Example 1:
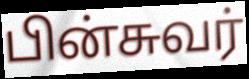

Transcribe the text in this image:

பின்சுவர்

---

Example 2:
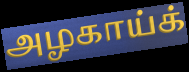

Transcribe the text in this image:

அழகாய்க்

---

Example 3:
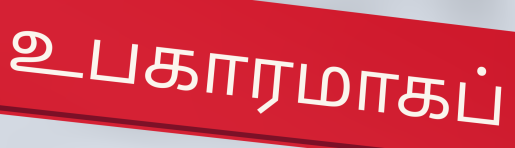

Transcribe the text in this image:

உபகாரமாகப்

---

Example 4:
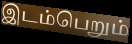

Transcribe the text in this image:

இடம்பெறும்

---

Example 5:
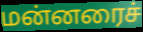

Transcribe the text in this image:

மன்னரைச்